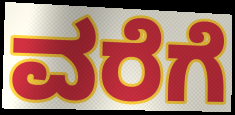
ವರೆಗೆ